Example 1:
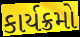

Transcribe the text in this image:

કાર્યક્રમો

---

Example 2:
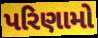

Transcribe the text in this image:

પરિણામો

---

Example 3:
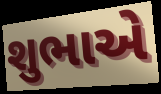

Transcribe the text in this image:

શુભાએ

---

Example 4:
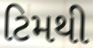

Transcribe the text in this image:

ટિમથી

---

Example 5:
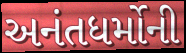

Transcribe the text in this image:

અનંતધર્મોની